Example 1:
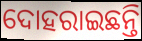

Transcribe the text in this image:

ଦୋହରାଇଛନ୍ତି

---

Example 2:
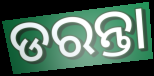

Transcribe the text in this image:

ଡରନ୍ତା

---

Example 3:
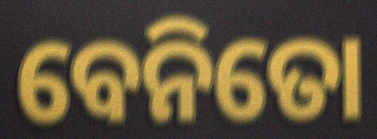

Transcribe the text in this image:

ବେନିତୋ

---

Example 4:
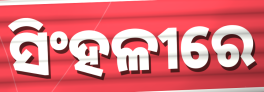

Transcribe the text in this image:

ସିଂହଳୀରେ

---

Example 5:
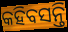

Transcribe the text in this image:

କହିବସନ୍ତି